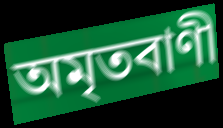
অমৃতবাণী